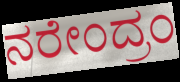
ನರೇಂದ್ರಂ